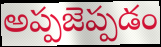
అప్పజెప్పడం